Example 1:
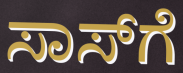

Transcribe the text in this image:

ಸಾಸ್‌ಗೆ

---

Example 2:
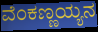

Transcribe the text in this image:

ವೆಂಕಣ್ಣಯ್ಯನ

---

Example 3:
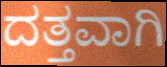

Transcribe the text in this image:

ದತ್ತವಾಗಿ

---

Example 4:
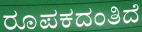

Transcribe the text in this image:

ರೂಪಕದಂತಿದೆ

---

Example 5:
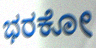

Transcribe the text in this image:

ಭರಕೋ